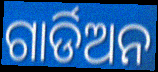
ଗାର୍ଡିଅନ